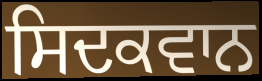
ਸਿਦਕਵਾਨ